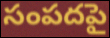
సంపదపై